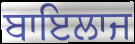
ਬਾਇਲਾਜ